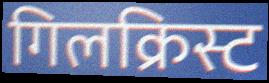
गिलक्रिस्‍ट